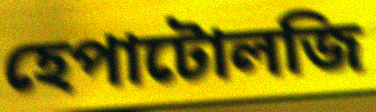
হেপাটোলজি